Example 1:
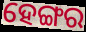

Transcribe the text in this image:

ହେଙ୍ଗର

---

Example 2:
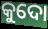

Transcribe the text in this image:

କୁଦୋ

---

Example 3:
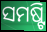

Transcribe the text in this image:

ସମଷ୍ଟି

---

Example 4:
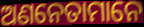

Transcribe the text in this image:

ଅଣନେତାମାନେ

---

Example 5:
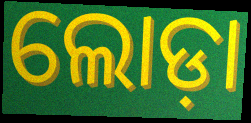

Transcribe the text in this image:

ଲୋଡ଼ା